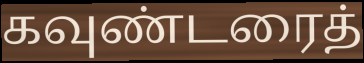
கவுண்டரைத்